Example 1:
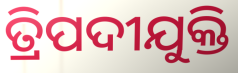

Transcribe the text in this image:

ତ୍ରିପଦୀଯୁକ୍ତି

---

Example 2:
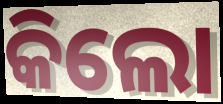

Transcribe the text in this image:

କିଲୋ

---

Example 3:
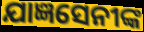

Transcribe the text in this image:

ଯାଜ୍ଞସେନୀଙ୍କ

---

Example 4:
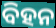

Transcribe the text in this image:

ବିହନ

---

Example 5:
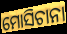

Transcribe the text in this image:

ମୋସିଚାନା